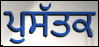
ਪੁਸੱਤਕ